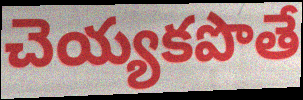
చెయ్యకపొతే